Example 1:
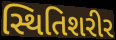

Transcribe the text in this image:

સ્થિતિશરીર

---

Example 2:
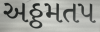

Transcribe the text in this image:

અઠ્ઠમતપ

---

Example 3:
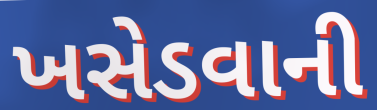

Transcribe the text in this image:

ખસેડવાની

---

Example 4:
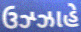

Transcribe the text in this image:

ઉઝ્ઝાહે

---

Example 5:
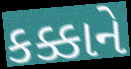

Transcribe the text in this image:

કક્કાને